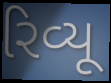
રિવ્યૂ